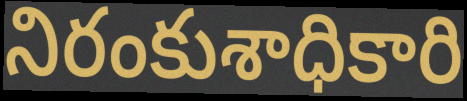
నిరంకుశాధికారి